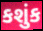
કશુંક